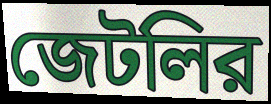
জেটলির